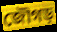
জৌগড়